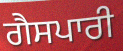
ਗੈਸਪਾਰੀ